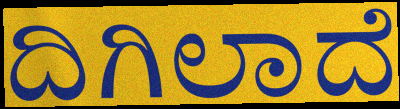
ದಿಗಿಲಾದೆ